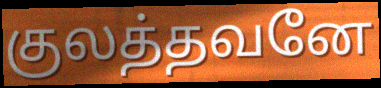
குலத்தவனே